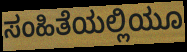
ಸಂಹಿತೆಯಲ್ಲಿಯೂ